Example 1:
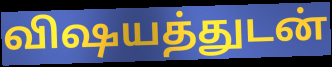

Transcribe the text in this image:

விஷயத்துடன்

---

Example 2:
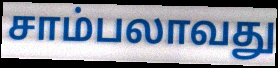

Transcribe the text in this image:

சாம்பலாவது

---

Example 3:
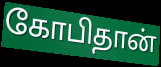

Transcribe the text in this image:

கோபிதான்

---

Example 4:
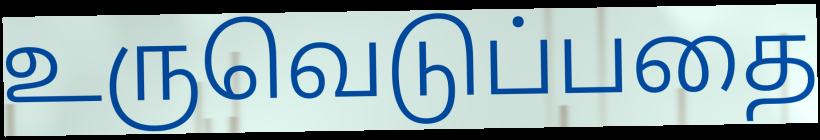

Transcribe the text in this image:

உருவெடுப்பதை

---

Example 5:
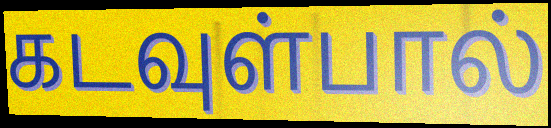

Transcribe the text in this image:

கடவுள்பால்